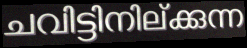
ചവിട്ടിനില്ക്കുന്ന